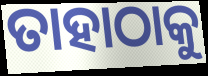
ତାହାଠାକୁ